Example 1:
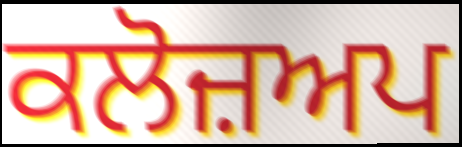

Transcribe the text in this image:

ਕਲੋਜ਼ਅਪ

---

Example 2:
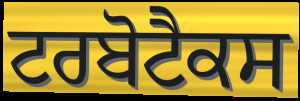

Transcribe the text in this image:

ਟਰਬੋਟੈਕਸ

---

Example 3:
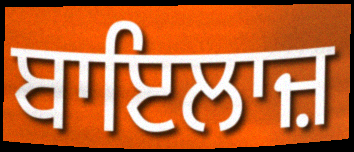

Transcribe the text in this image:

ਬਾਇਲਾਜ਼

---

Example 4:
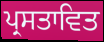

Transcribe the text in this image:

ਪ੍ਰਸਤਾਵਿਤ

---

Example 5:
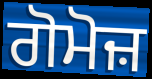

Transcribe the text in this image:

ਗੋਮੋਜ਼